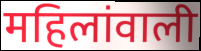
महिलांवाली